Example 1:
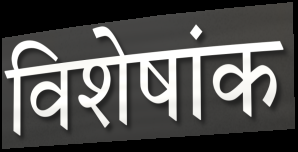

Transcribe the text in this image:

विशेषांक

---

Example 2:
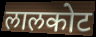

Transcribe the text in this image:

लालकोट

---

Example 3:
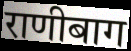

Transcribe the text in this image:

राणीबाग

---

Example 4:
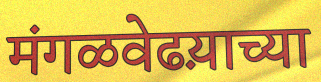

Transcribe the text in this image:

मंगळवेढय़ाच्या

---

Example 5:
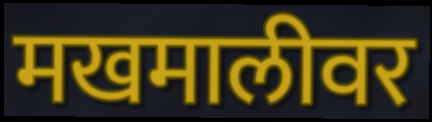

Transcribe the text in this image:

मखमालीवर